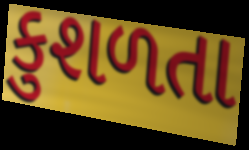
કુશળતા